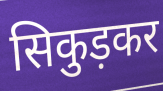
सिकुड़कर